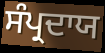
ਸੰਪ੍ਰਦਾਯ